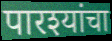
पारश्यांचा